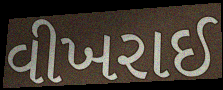
વીખરાઈ